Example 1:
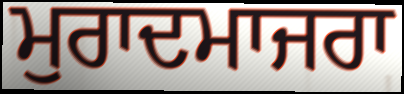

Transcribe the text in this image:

ਮੁਰਾਦਮਾਜਰਾ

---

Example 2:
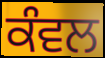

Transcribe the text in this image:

ਕੰਵਲ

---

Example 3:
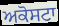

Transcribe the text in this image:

ਅਕੋਸਟਾ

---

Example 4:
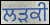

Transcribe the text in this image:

ਲੜਕੀ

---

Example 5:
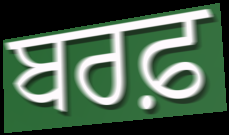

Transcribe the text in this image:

ਬਰਫ਼